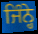
ਜਿੰਨ੍ਹੇ